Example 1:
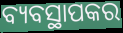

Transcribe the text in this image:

ବ୍ୟବସ୍ଥାପକର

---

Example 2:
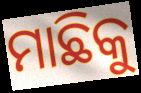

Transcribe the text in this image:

ମାଛିକୁ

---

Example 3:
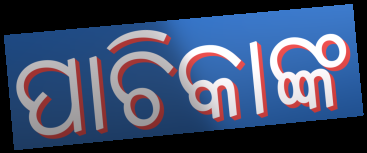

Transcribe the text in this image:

ପାଚିକାଙ୍କ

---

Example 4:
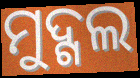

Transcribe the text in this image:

ମୁଦ୍ଗଲ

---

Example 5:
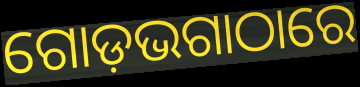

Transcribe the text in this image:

ଗୋଡ଼ଭଗାଠାରେ